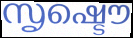
സൃഷ്ടൌ